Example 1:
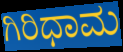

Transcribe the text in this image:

ಗಿರಿಧಾಮ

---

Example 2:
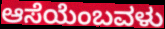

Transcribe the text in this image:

ಆಸೆಯೆಂಬವಳು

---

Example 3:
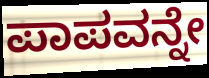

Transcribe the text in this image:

ಪಾಪವನ್ನೇ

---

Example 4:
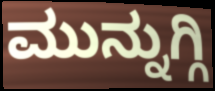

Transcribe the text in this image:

ಮುನ್ನುಗ್ಗಿ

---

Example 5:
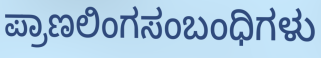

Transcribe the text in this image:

ಪ್ರಾಣಲಿಂಗಸಂಬಂಧಿಗಳು